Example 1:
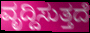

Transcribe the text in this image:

ವೃದ್ದಿಸುತ್ತದೆ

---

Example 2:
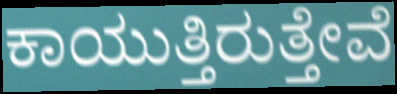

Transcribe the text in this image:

ಕಾಯುತ್ತಿರುತ್ತೇವೆ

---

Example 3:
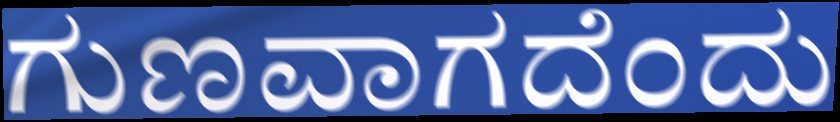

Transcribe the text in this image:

ಗುಣವಾಗದೆಂದು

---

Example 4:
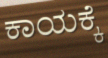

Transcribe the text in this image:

ಕಾಯಕ್ಕೆ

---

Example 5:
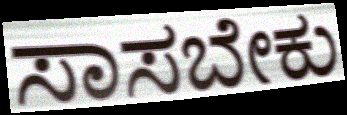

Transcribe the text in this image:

ಸಾಸಬೇಕು